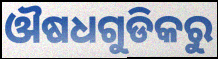
ଔଷଧଗୁଡିକରୁ